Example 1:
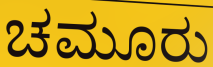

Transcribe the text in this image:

ಚಮೂರು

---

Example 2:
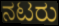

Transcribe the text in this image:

ನಟರು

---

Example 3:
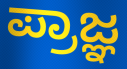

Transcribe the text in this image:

ಪ್ರಾಜ್ಞ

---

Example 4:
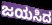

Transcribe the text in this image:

ಜಯಸಿದ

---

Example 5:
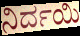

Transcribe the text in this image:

ನಿರ್ದಯಿ